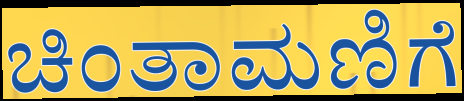
ಚಿಂತಾಮಣಿಗೆ